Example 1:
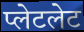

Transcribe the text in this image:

प्लेटलेट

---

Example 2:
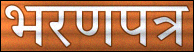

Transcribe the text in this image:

भरणपत्र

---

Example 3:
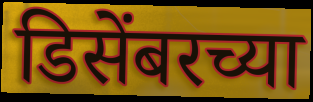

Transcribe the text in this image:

डिसेंबरच्या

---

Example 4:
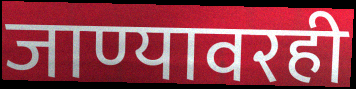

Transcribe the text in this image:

जाण्यावरही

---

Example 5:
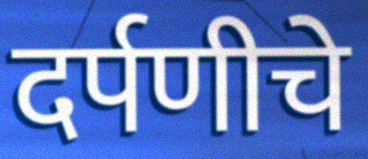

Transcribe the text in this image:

दर्पणीचे